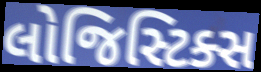
લોજિસ્ટિક્સ